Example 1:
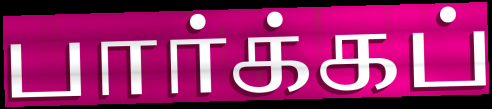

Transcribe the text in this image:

பார்க்கப்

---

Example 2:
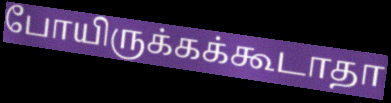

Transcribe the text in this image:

போயிருக்கக்கூடாதா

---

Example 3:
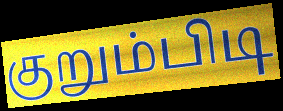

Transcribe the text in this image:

குறும்பிடி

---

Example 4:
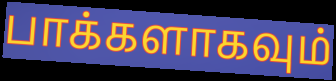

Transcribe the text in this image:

பாக்களாகவும்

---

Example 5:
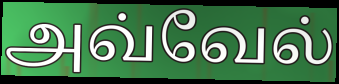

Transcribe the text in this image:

அவ்வேல்